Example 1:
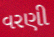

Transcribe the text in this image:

વરણી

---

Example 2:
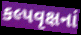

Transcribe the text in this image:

કલ્પવૃક્ષનાં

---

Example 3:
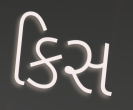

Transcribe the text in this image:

કિસ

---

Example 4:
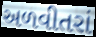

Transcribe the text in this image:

અળવીતરાં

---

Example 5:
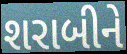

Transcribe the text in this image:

શરાબીને